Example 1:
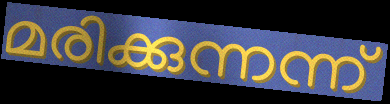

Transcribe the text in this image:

മരിക്കുന്നന്ന്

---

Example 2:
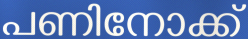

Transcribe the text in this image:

പണിനോക്ക്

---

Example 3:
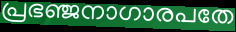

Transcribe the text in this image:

പ്രഭഞ്ജനാഗാരപതേ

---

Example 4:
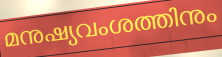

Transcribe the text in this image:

മനുഷ്യവംശത്തിനും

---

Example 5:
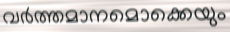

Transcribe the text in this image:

വർത്തമാനമൊക്കെയും